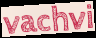
vachvi